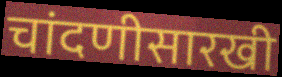
चांदणीसारखी